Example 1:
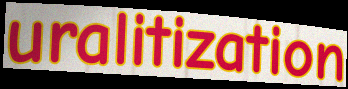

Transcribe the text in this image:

uralitization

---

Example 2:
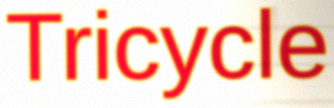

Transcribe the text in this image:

Tricycle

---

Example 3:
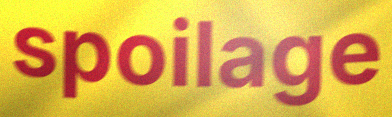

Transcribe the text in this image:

spoilage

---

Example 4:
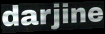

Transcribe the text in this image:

darjine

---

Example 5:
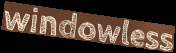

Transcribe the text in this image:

windowless